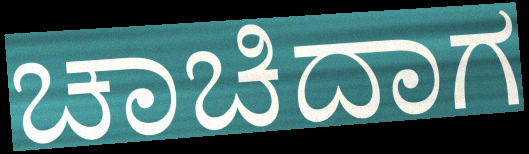
ಚಾಚಿದಾಗ